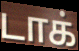
டாக்